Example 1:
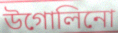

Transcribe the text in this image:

উগোলিনো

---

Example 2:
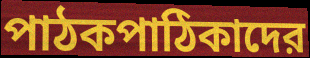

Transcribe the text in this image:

পাঠকপাঠিকাদের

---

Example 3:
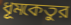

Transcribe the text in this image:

ধূমকেতুর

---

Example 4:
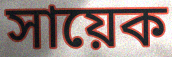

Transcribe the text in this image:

সায়েক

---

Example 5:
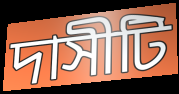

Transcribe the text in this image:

দাসীটি